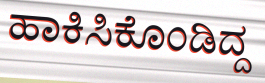
ಹಾಕಿಸಿಕೊಂಡಿದ್ದ